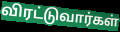
விரட்டுவார்கள்